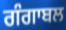
ਗੰਗਾਬਲ